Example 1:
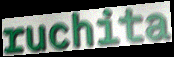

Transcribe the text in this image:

ruchita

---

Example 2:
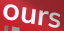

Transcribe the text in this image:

ours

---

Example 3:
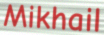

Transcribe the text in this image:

Mikhail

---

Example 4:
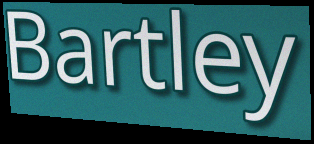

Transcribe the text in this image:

Bartley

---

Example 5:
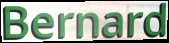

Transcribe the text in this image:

Bernard